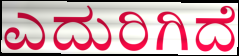
ಎದುರಿಗಿದೆ